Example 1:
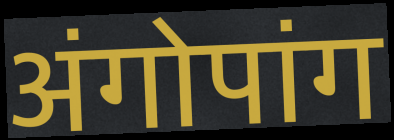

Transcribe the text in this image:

अंगोपांग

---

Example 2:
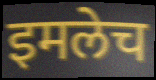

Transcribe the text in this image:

इमलेच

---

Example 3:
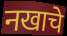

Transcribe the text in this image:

नखाचे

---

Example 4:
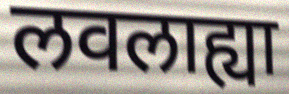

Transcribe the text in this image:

लवलाह्या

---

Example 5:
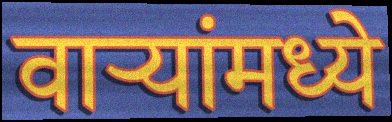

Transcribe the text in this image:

वाऱ्यांमध्ये